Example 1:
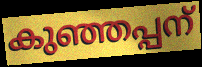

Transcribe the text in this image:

കുഞ്ഞപ്പന്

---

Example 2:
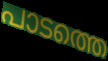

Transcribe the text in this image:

പാടത്തെ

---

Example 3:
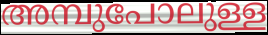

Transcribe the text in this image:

അമ്പുപോലുള്ള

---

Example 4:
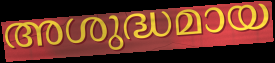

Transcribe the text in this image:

അശുദ്ധമായ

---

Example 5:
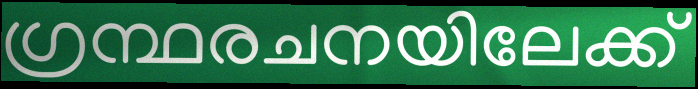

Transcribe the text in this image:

ഗ്രന്ഥരചനയിലേക്ക്